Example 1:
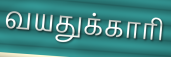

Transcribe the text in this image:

வயதுக்காரி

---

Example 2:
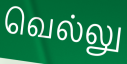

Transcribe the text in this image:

வெல்லு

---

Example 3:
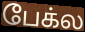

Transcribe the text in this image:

பேக்ல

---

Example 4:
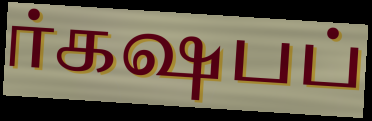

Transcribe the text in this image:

ர்கஷபப்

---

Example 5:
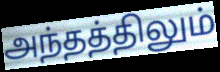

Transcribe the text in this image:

அந்தத்திலும்